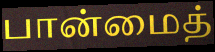
பான்மைத்